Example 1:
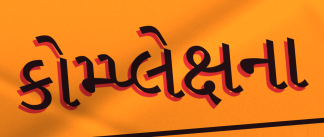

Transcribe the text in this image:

કોમ્પ્લેક્ષના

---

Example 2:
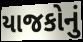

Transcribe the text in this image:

યાજકોનું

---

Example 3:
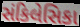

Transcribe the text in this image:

સંકિલેસિકા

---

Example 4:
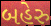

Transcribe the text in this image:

બહેરુ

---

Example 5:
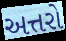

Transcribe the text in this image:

અત્તરો